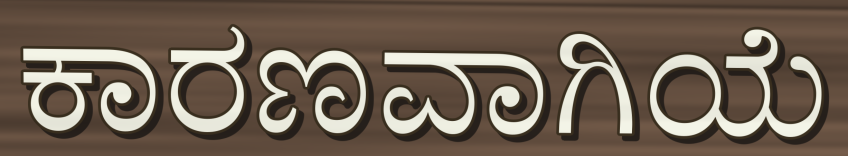
ಕಾರಣವಾಗಿಯೆ